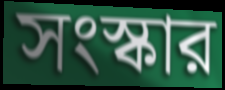
সংস্কার